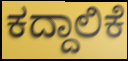
ಕದ್ದಾಲಿಕೆ